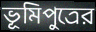
ভূমিপুত্রের